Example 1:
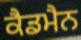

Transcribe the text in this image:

ਕੈਡਮੈਨ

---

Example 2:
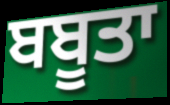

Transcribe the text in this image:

ਬਬੂਤਾ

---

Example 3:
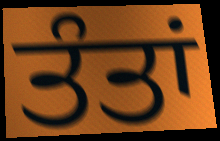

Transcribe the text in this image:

ਤੰਤਾਂ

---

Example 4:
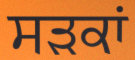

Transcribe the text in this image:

ਸੜਕਾਂ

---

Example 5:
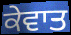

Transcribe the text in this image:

ਕੇਵਾਤ